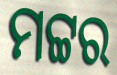
ମଟ୍ଟର